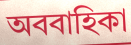
অববাহিকা